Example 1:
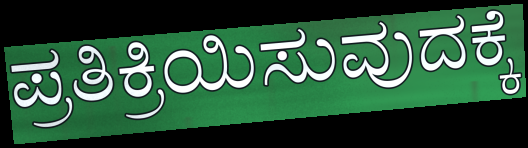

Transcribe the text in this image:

ಪ್ರತಿಕ್ರಿಯಿಸುವುದಕ್ಕೆ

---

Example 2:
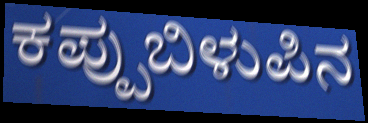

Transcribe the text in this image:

ಕಪ್ಪುಬಿಳುಪಿನ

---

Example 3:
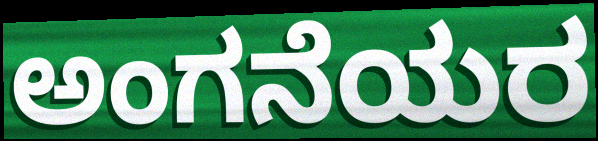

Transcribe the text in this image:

ಅಂಗನೆಯರ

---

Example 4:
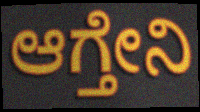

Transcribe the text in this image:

ಆಗ್ತೇನಿ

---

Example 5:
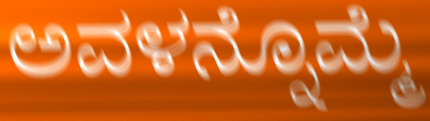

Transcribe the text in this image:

ಅವಳನ್ನೊಮ್ಮೆ